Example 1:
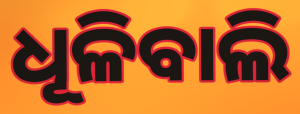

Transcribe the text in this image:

ଧୂଳିବାଲି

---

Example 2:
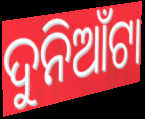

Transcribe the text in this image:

ଦୁନିଆଁଟା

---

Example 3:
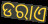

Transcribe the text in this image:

ଡରାଏ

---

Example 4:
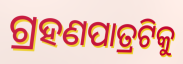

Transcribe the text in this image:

ଗ୍ରହଣପାତ୍ରଟିକୁ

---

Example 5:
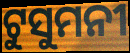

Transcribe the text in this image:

ଟୁସୁମନୀ